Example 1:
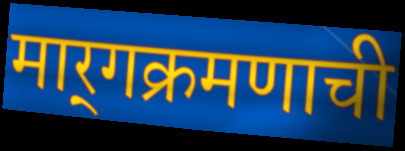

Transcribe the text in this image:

मार्गक्रमणाची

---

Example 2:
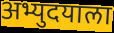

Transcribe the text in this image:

अभ्युदयाला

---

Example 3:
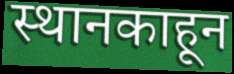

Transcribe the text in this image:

स्थानकाहून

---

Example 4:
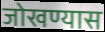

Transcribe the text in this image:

जोखण्यास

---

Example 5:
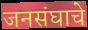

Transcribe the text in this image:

जनसंघाचे